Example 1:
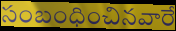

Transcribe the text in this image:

సంబంధించినవారే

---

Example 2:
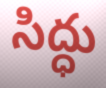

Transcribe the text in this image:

సిద్ధు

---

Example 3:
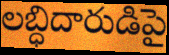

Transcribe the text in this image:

లబ్ధిదారుడిపై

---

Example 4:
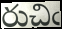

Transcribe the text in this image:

రుచిఁ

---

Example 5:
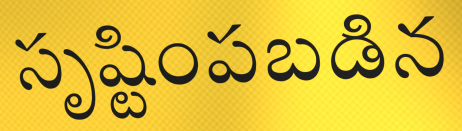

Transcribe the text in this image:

సృష్టింపబడిన